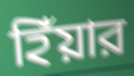
হিঁয়ার